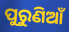
ପୁରୁଣିଆଁ